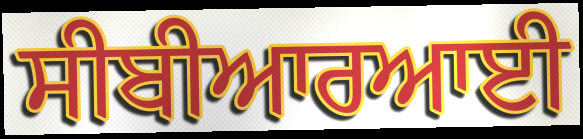
ਸੀਬੀਆਰਆਈ